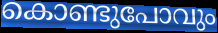
കൊണ്ടുപോവും